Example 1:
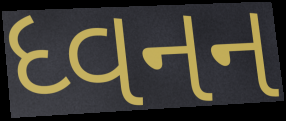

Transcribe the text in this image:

ધ્વનન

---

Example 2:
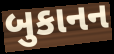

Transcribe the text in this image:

બુકાનન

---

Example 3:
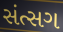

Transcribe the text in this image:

સંત્સગ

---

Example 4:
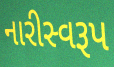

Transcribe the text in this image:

નારીસ્વરૂપ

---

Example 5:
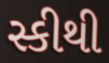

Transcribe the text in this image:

સ્કીથી